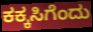
ಕಕ್ಕಸಿಗೆಂದು